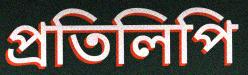
প্ৰতিলিপি